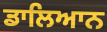
ਡਾਲਿਆਨ